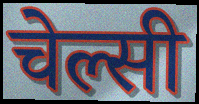
चेल्सी